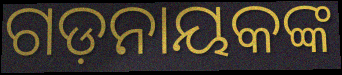
ଗଡ଼ନାୟକଙ୍କ